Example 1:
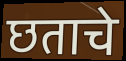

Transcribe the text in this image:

छताचे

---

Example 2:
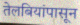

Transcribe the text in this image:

तेलबियांपासून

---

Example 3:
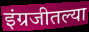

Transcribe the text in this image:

इंग्रजीतल्या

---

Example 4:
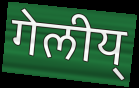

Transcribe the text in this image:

गेलीय्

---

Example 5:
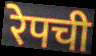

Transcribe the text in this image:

रेपची